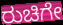
ರುಚಿಗೇ